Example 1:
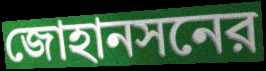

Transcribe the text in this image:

জোহানসনের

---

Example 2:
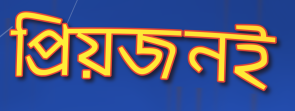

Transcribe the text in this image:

প্রিয়জনই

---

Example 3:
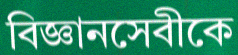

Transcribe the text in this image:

বিজ্ঞানসেবীকে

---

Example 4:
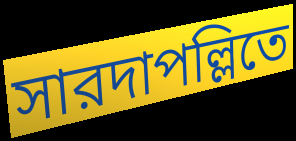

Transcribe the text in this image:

সারদাপল্লিতে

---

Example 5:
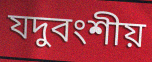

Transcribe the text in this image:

যদুবংশীয়